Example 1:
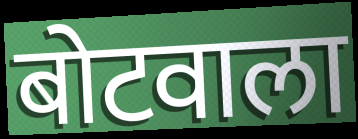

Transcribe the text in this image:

बोटवाला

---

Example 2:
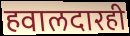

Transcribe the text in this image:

हवालदारही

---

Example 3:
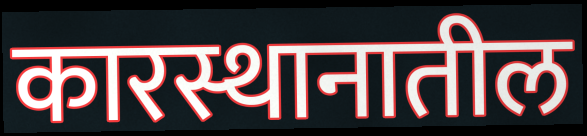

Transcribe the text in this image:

कारस्थानातील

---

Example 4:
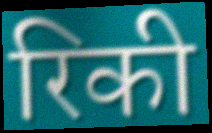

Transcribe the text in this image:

रिकी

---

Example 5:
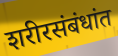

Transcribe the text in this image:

शरीरसंबंधांत